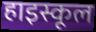
हाइस्कूल